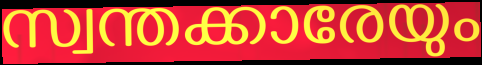
സ്വന്തക്കാരേയും